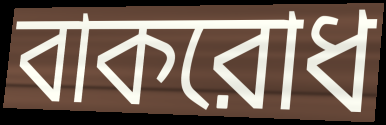
বাকরোধ